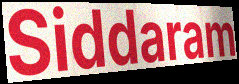
Siddaram